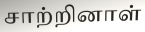
சாற்றினாள்